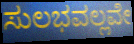
ಸುಲಭವಲ್ಲವೇ